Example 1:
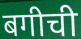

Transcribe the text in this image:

बगीची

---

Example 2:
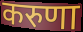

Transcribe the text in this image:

करुणा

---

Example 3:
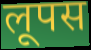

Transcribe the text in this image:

लूपस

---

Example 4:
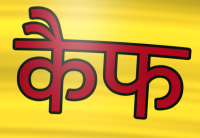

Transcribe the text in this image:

कैफ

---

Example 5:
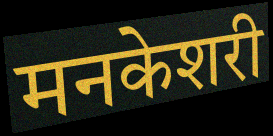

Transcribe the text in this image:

मनकेशरी